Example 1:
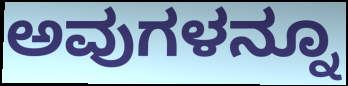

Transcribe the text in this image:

ಅವುಗಳನ್ನೂ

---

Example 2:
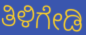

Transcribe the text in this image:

ತಿಳಿಗೇಡಿ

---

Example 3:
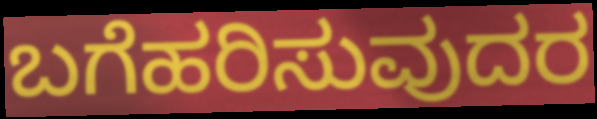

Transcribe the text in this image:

ಬಗೆಹರಿಸುವುದರ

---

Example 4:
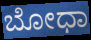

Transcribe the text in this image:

ಬೋಧಾ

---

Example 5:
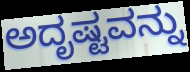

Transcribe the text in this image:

ಅದೃಷ್ಟವನ್ನು